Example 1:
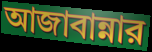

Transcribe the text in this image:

আজাবান্নার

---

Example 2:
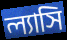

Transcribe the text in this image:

ল্যাসি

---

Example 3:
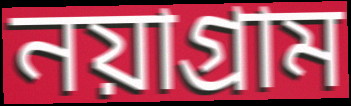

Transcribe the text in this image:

নয়াগ্রাম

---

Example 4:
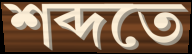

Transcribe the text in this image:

শব্দতে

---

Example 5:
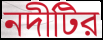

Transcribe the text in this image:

নদীটির